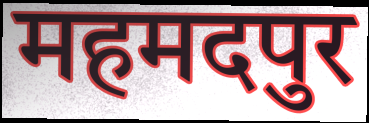
महमदपुर